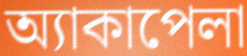
অ্যাকাপেলা